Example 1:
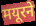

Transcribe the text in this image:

मयूरने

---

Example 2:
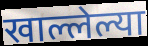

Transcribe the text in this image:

खाल्लेल्या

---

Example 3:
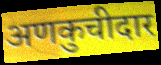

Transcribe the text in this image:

अणकुचीदार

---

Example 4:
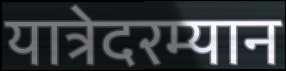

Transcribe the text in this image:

यात्रेदरम्यान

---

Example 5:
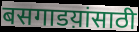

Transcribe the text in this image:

बसगाडय़ांसाठी